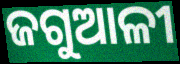
ଜଗୁଆଳୀ